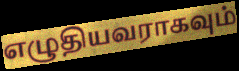
எழுதியவராகவும்